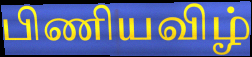
பிணியவிழ்